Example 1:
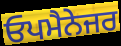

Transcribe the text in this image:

ਓਪਮੈਨੇਜਰ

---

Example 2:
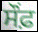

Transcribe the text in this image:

ਸੌਂਫ਼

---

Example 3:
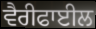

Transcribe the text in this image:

ਵੈਰੀਫਾਈਲ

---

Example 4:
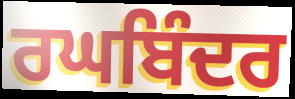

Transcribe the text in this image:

ਰਘਬਿੰਦਰ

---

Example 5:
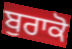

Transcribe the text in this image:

ਬੁਰਾਕੋ